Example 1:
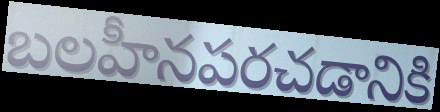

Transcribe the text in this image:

బలహీనపరచడానికి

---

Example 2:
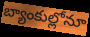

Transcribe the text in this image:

బ్యాంకుల్లోనూ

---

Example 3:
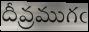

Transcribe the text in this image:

దీవ్రముగఁ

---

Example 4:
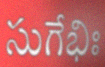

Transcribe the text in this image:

సుగేభిః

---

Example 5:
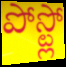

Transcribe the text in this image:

పోస్ట్లో